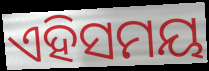
ଏହିସମୟ